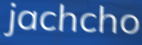
jachcho